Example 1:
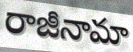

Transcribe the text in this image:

రాజీనామా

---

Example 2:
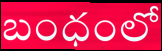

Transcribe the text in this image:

బంధంలో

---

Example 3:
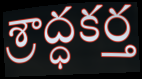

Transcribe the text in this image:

శ్రాద్ధకర్త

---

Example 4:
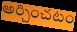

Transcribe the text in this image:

అర్చించటం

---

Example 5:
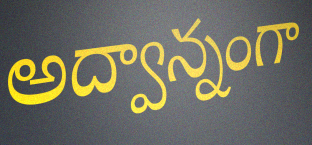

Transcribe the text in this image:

అద్వాన్నంగా